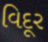
વિદૂર